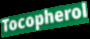
Tocopherol